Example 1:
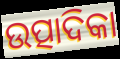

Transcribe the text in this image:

ଉତ୍ପାଦିକା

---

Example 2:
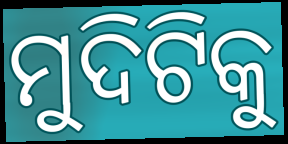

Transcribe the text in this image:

ମୁଦିଟିକୁ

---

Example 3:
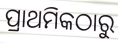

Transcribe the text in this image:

ପ୍ରାଥମିକଠାରୁ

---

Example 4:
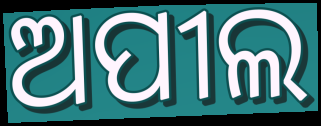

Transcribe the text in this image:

ଅପୀଲ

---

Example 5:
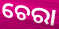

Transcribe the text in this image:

ଚେରା